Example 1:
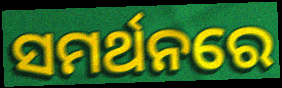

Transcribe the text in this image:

ସମର୍ଥନରେ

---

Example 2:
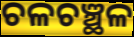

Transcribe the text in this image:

ଚଳଚଞ୍ଛଳ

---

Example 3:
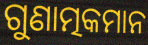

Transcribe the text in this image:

ଗୁଣାତ୍ମକମାନ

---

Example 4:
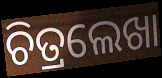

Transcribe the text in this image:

ଚିତ୍ରଲେଖା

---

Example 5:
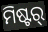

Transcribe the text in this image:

ମିଷ୍ଟର୍